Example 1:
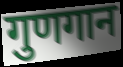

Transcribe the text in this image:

गुणगान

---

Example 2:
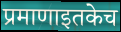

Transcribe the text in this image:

प्रमाणाइतकेच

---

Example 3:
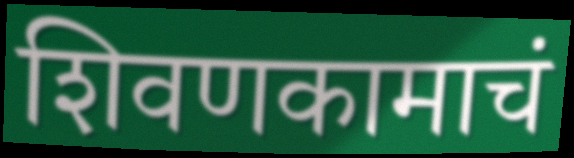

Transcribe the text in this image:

शिवणकामाचं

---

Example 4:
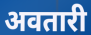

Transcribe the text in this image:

अवतारी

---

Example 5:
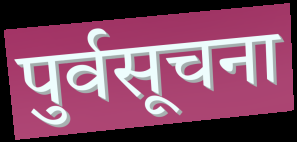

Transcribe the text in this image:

पुर्वसूचना